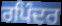
ਰਪਿੰਦਰ